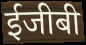
ईजीबी